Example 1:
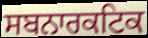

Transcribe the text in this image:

ਸਬਨਾਰਕਟਿਕ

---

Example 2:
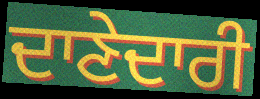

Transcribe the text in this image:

ਦਾਣੇਦਾਰੀ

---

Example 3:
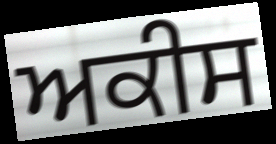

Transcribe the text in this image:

ਅਕੀਸ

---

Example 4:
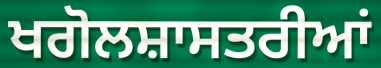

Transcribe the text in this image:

ਖਗੋਲਸ਼ਾਸਤਰੀਆਂ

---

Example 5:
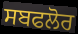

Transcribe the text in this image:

ਸਬਫਲੋਰ